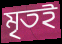
মৃতই